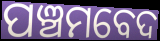
ପଞ୍ଚମବେଦ